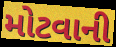
મોટવાની